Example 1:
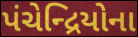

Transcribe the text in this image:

પંચેન્દ્રિયોના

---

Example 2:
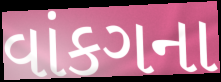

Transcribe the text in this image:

વાંકગના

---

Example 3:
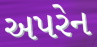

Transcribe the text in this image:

અપરેન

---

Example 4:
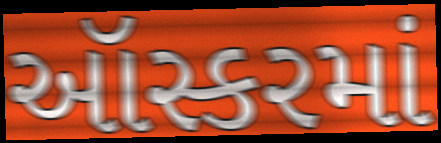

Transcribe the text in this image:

ઑસ્કરમાં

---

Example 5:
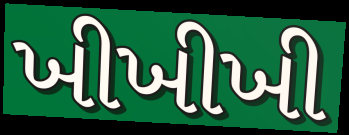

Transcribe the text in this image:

ખીખીખી